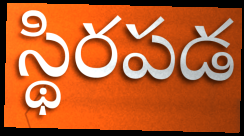
స్థిరపడ